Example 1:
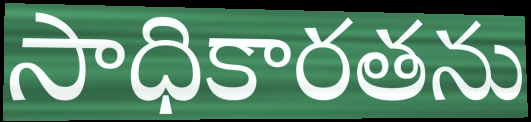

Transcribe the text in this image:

సాధికారతను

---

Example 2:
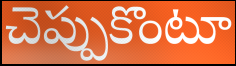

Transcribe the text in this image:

చెప్పుకొంటూ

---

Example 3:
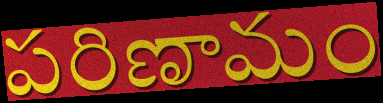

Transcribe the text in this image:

పరిణామం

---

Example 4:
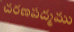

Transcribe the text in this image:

చరణపద్మము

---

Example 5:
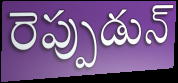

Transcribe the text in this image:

రెప్పుడున్